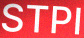
STPI